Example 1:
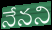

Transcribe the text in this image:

నేనని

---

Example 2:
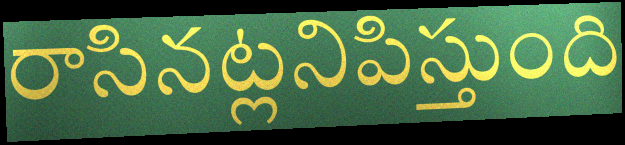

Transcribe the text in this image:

రాసినట్లనిపిస్తుంది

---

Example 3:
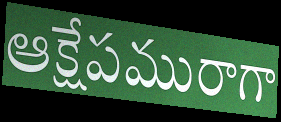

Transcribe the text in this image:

ఆక్షేపమురాగా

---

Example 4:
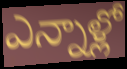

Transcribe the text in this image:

ఎన్నాళ్లో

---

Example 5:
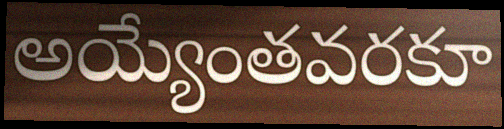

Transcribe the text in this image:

అయ్యేంతవరకూ